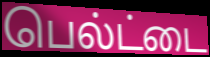
பெல்ட்டை